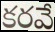
కరవే